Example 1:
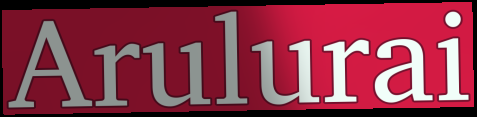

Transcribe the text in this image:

Arulurai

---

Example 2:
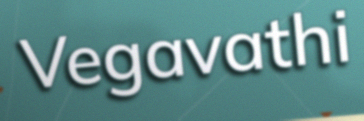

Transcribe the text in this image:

Vegavathi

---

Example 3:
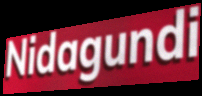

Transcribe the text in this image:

Nidagundi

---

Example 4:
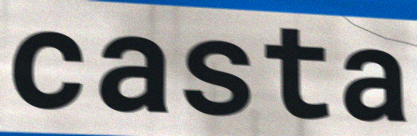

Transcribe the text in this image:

casta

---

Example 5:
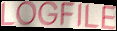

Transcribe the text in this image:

LOGFILE